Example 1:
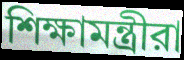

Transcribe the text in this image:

শিক্ষামন্ত্রীরা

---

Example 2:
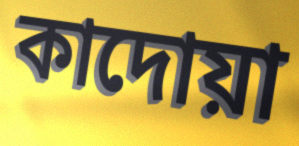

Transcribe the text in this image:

কাদোয়া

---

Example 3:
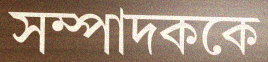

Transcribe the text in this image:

সম্পাদককে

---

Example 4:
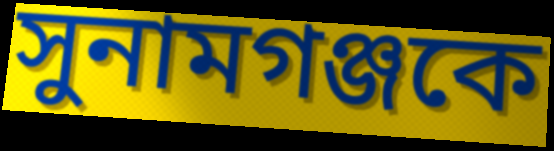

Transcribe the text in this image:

সুনামগঞ্জকে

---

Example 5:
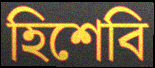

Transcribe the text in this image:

হিশেবি